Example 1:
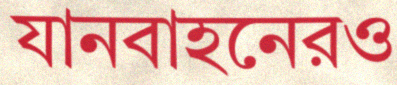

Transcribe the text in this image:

যানবাহনেরও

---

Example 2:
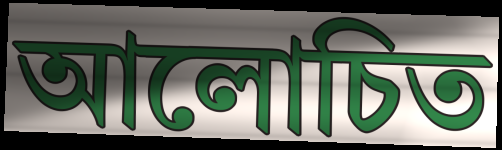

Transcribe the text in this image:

আলোচিত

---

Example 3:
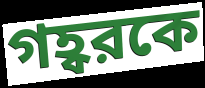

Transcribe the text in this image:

গহ্বরকে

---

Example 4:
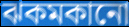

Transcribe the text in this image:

ঝকমকানো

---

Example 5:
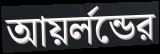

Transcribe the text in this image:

আয়র্লন্ডের